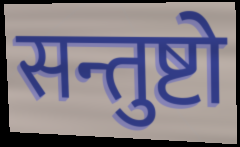
सन्तुष्टो